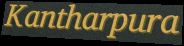
Kantharpura